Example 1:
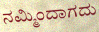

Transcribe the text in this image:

ನಮ್ಮಿಂದಾಗದು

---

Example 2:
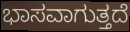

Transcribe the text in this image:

ಭಾಸವಾಗುತ್ತದೆ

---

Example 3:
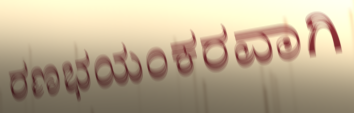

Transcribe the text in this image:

ರಣಭಯಂಕರವಾಗಿ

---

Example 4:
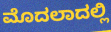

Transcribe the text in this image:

ಮೊದಲಾದಲ್ಲಿ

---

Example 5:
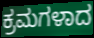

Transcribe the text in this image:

ಕ್ರಮಗಳಾದ